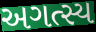
અગત્સ્ય